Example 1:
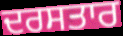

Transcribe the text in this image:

ਦਰਸਤਾਰ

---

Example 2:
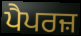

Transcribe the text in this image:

ਪੈਪਰਜ਼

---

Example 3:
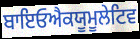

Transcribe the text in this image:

ਬਾਇਓਐਕਯੂਮੂਲੇਟਿਵ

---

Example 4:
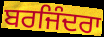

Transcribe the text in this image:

ਬਰਜਿੰਦਰਾ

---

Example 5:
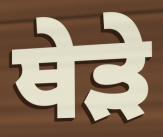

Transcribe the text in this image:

ਥੇੜੇ